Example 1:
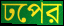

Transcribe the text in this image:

ঢপের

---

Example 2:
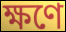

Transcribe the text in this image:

ক্ষণে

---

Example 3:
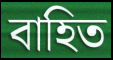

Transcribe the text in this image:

বাহিত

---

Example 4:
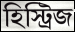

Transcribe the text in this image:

হিস্ট্রিজ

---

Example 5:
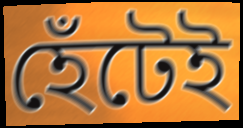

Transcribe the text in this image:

হেঁটেই